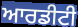
ਆਰਡੀਟੀ